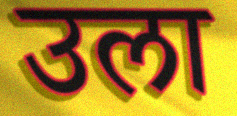
उला